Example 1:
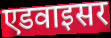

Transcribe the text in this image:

एडवाइसर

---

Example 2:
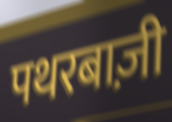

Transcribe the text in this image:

पथरबाज़ी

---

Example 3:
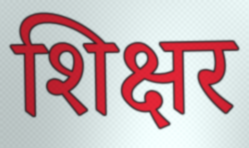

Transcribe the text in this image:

शिक्षर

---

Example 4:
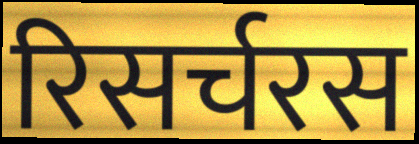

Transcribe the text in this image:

रिसर्चरस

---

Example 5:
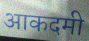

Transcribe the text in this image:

आकदमी